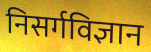
निसर्गविज्ञान